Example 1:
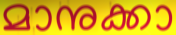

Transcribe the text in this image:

മാനുക്കാ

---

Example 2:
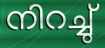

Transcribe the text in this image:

നിറച്ചു്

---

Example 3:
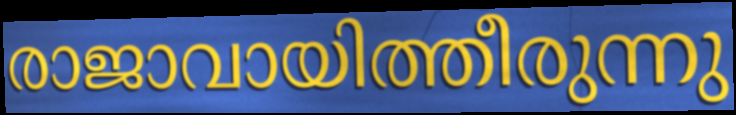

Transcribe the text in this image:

രാജാവായിത്തീരുന്നു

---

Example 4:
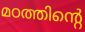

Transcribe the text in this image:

മഠത്തിന്റെ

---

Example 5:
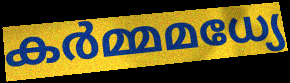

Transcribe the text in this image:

കർമ്മമധ്യേ